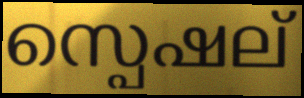
സ്പെഷല്